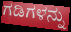
ಗಡಿಗಳನ್ನು